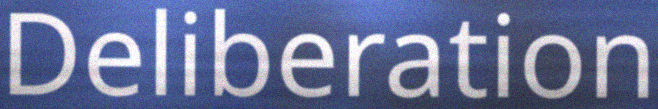
Deliberation